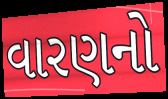
વારણનો